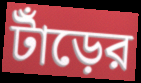
টাঁড়ের